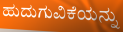
ಹುದುಗುವಿಕೆಯನ್ನು